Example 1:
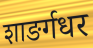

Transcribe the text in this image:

शाङर्गधर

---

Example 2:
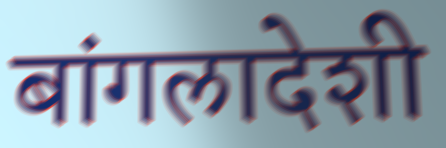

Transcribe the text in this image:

बांगलादेशी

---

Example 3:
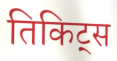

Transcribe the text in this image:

तिकिट्स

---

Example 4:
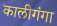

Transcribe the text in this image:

कालीगंगा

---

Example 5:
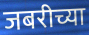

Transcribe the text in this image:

जबरीच्या